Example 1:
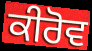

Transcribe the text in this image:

ਕੀਰੋਵ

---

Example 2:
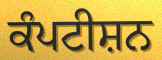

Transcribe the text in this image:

ਕੰਪਟੀਸ਼ਨ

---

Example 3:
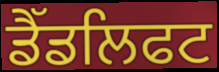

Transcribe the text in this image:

ਡੈੱਡਲਿਫਟ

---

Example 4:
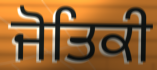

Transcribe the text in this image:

ਜੋਤਿਕੀ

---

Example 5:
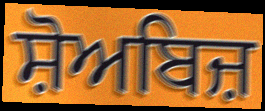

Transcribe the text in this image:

ਸ਼ੋਅਬਿਜ਼